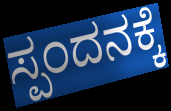
ಸ್ಪಂದನಕ್ಕೆ